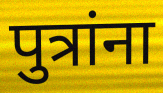
पुत्रांना